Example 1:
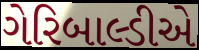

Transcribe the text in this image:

ગેરિબાલ્ડીએ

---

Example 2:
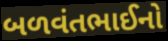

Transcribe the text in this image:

બળવંતભાઈનો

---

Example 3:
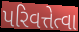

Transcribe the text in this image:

પરિવત્તેત્વા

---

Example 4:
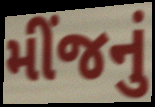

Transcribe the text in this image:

મીંજનું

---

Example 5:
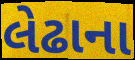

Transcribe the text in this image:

લેઢાના